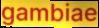
gambiae